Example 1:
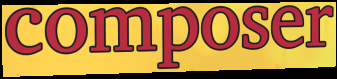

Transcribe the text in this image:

composer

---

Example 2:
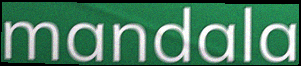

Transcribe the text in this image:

mandala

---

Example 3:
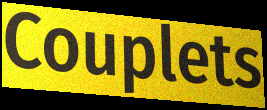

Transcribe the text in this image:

Couplets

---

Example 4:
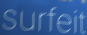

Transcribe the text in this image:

surfeit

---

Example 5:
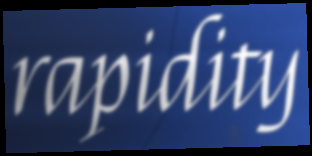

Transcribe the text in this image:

rapidity